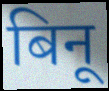
बिनू